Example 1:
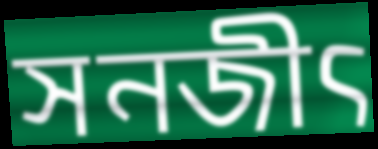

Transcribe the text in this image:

সনজীৎ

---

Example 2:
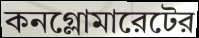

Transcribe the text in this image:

কনগ্লোমারেটের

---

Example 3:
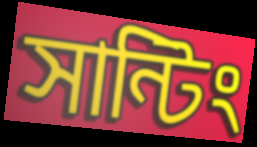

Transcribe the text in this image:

সান্টিং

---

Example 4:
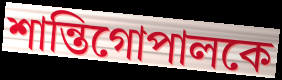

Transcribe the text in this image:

শান্তিগোপালকে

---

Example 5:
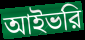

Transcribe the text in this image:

আইভরি